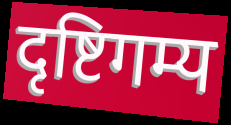
दृष्टिगम्य